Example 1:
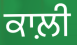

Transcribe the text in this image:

ਕਾਲ਼ੀ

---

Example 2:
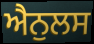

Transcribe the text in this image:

ਐਨੁਲਸ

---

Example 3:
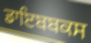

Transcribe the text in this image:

ਡਾਇਬਬਕਸ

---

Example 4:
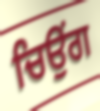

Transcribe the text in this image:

ਚਿਉਂਗ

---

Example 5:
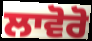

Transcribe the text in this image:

ਲਾਵੋਰੋ